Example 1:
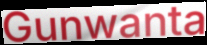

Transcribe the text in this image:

Gunwanta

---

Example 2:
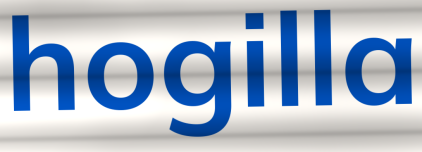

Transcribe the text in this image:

hogilla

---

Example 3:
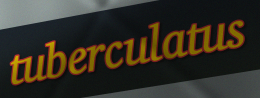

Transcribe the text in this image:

tuberculatus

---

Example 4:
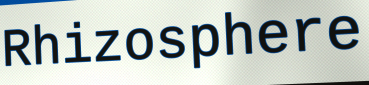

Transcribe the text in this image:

Rhizosphere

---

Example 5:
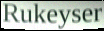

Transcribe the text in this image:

Rukeyser